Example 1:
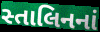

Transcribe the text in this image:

સ્તાલિનનાં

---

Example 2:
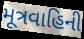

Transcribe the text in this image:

મૂત્રવાહિની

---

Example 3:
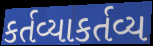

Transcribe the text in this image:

કર્તવ્યાકર્તવ્ય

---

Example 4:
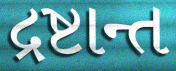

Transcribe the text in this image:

દ્રષ્ટાન્ત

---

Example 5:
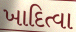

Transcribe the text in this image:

ખાદિત્વા